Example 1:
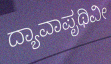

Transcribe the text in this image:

ದ್ಯಾವಾಪೃಥಿವೀ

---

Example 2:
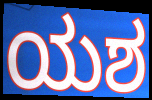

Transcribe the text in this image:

ಯಶ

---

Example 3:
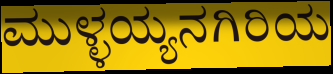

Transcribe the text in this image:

ಮುಳ್ಳಯ್ಯನಗಿರಿಯ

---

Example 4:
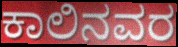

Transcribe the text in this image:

ಕಾಲಿನವರ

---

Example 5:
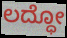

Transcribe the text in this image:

ಲದ್ಧೋ